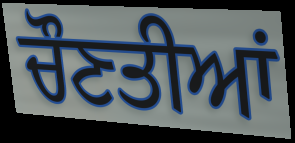
ਚੌਣਤੀਆਂ